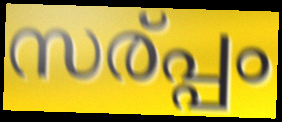
സര്പ്പം